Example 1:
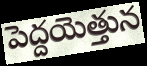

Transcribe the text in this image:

పెద్దయెత్తున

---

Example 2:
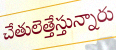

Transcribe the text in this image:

చేతులెత్తేస్తున్నారు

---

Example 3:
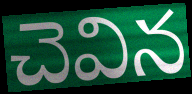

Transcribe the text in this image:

చెవిన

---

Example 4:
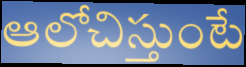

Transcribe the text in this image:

ఆలోచిస్తుంటే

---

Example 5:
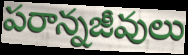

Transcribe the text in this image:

పరాన్నజీవులు